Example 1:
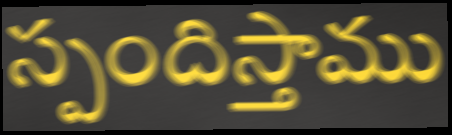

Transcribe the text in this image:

స్పందిస్తాము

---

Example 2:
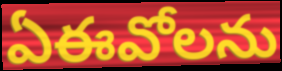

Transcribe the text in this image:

ఏఈవోలను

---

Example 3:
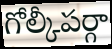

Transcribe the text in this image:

గోల్కీపర్గా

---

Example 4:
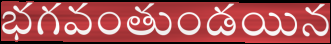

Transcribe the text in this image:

భగవంతుండయిన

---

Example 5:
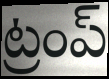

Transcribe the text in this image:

ట్రంప్